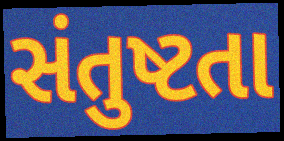
સંતુષ્ટતા